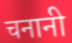
चनानी